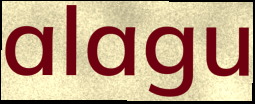
alagu